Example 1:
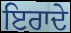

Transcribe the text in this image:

ਇਰਾਦੇ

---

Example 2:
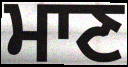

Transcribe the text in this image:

ਮਾਣ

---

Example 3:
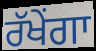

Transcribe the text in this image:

ਰੱਖੇਂਗਾ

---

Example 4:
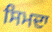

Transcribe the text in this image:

ਸਿਮਦਾ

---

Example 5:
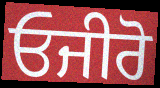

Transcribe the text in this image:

ਓਜੀਰੋ